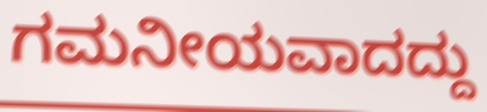
ಗಮನೀಯವಾದದ್ದು